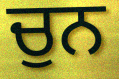
ਚੁਨ